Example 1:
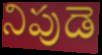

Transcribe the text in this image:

నిపుడె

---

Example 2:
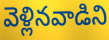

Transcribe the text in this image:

వెళ్లినవాడిని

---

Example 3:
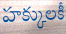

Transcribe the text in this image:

హక్కులకీ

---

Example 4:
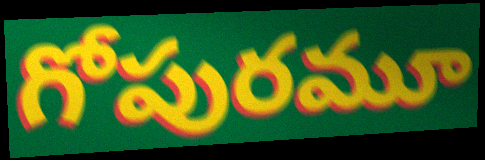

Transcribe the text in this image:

గోపురమూ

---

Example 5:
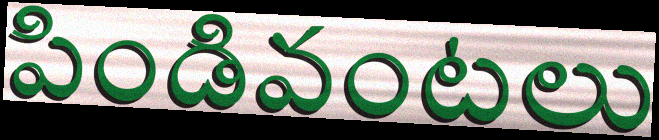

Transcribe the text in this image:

పిండివంటలు